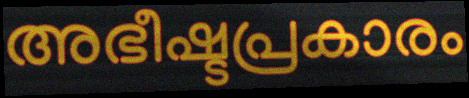
അഭീഷ്ടപ്രകാരം